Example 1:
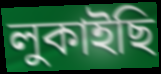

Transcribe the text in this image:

লুকাইছি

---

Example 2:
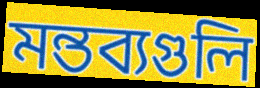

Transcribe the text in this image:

মন্তব্যগুলি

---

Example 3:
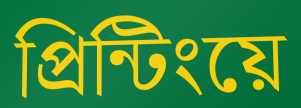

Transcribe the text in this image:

প্রিন্টিংয়ে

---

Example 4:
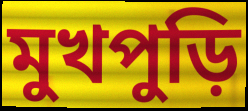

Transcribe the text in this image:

মুখপুড়ি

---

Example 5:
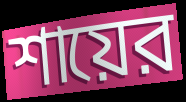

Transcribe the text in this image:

শায়ের